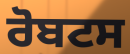
ਰੋਬਟਸ